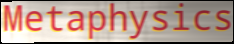
Metaphysics